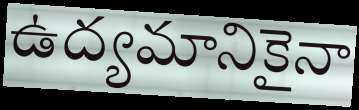
ఉద్యమానికైనా